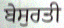
ਬੇਸੁਰਤੀ